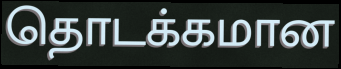
தொடக்கமான